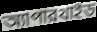
অ্যাপারথাইড